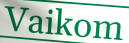
Vaikom